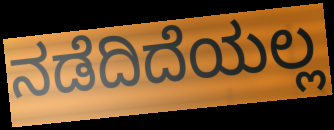
ನಡೆದಿದೆಯಲ್ಲ